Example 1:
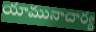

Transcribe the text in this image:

యామునాచార్య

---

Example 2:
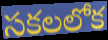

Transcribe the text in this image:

సకలలోక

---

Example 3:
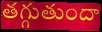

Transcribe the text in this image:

తగ్గుతుందా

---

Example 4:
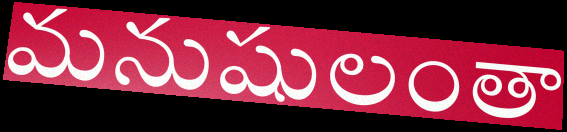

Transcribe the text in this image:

మనుషులంతా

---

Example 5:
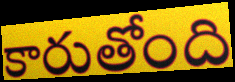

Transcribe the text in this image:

కారుతోంది